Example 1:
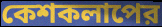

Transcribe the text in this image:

কেশকলাপের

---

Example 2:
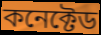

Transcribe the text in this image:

কনেক্টেড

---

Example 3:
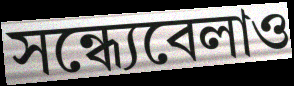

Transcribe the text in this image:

সন্ধ্যেবেলাও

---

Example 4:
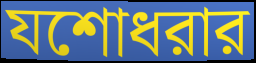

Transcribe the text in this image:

যশোধরার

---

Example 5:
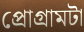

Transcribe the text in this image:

প্রোগ্রামটা